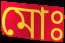
মোঃ